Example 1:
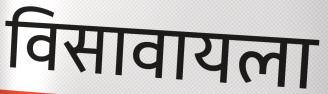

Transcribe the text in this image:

विसावायला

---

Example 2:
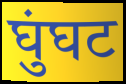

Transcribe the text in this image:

घुंघट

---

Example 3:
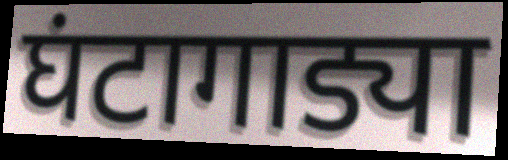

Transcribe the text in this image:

घंटागाड्या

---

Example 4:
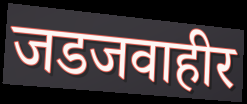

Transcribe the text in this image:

जडजवाहीर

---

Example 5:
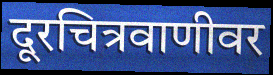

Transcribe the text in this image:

दूरचित्रवाणीवर